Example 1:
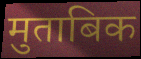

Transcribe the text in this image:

मुताबिक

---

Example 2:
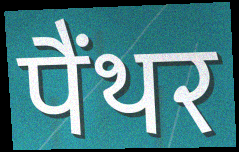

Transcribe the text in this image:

पैंथर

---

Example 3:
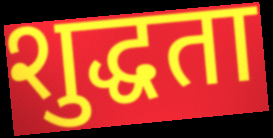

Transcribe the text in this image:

शुद्धता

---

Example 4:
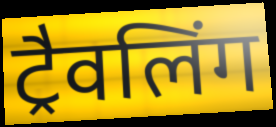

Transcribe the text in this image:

ट्रैवलिंग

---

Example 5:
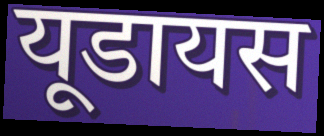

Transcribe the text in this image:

यूडायस